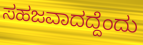
ಸಹಜವಾದದ್ದೆಂದು